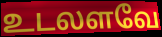
உடலளவே